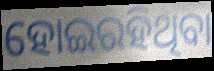
ହୋଇରହିଥିବା